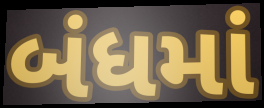
બંધમાં